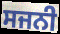
ਸਜਨੀ